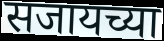
सजायच्या